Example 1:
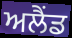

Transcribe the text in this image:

ਅਲੈਂਡ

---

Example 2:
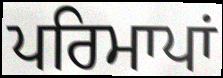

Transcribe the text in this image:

ਪਰਿਮਾਪਾਂ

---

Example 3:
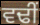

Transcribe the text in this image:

ਵਢੀਂ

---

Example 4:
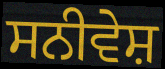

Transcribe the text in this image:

ਸਨੀਵੇਸ਼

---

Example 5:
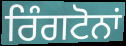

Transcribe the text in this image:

ਰਿੰਗਟੋਨਾਂ